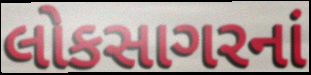
લોકસાગરનાં